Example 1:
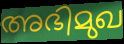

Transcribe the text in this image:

അഭിമുഖ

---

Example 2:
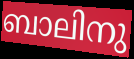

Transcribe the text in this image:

ബാലിനു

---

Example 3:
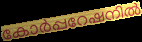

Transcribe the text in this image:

കോർപ്പറേഷനിൽ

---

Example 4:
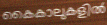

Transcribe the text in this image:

കൈകാലുകളിൽ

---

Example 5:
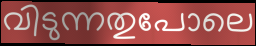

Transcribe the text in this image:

വിടുന്നതുപോലെ